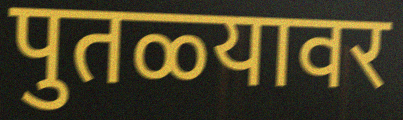
पुतळ्यावर